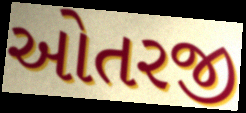
ઓતરજી